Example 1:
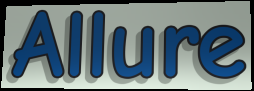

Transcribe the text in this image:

Allure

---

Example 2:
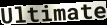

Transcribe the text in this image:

Ultimate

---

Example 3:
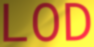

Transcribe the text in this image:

LOD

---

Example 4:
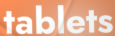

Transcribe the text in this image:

tablets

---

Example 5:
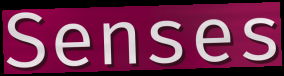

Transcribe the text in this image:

Senses